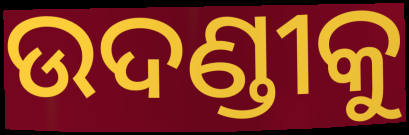
ଉଦଣ୍ଡୀକୁ